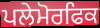
ਪਲੇਮੋਰਫਿਕ